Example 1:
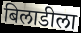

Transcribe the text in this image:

बिलाडीला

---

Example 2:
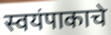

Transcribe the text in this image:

स्वयंपाकाचे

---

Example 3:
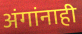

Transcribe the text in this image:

अंगांनाही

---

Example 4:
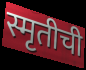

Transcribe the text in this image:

स्मृतीची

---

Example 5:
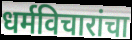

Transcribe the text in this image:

धर्मविचारांचा